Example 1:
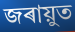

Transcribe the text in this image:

জৰায়ুত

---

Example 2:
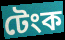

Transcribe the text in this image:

টেংক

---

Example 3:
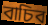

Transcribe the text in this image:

বাচিব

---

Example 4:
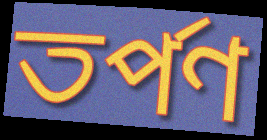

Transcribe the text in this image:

তৰ্পণ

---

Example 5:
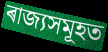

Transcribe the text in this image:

ৰাজ্যসমূহত